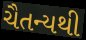
ચૈતન્યથી